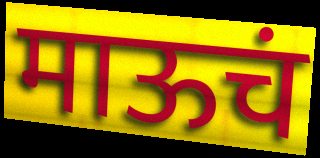
माऊचं